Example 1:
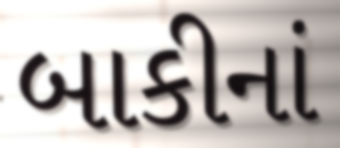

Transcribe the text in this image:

બાકીનાં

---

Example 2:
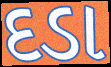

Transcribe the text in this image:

દડા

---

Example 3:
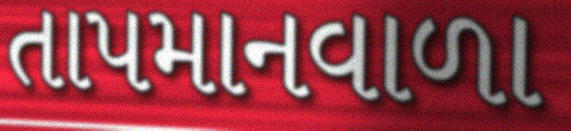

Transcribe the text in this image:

તાપમાનવાળા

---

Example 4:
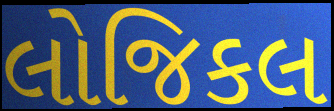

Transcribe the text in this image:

લોજિકલ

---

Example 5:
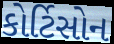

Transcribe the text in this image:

કોર્ટિસોન